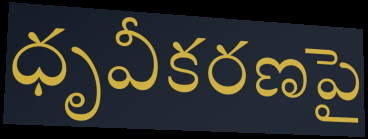
ధృవీకరణపై